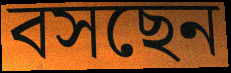
বসছেন